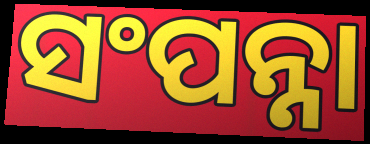
ସଂପନ୍ନା